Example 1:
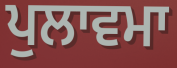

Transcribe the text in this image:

ਪੁਲਾਵਮਾ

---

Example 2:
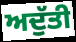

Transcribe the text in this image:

ਅਦੁੱਤੀ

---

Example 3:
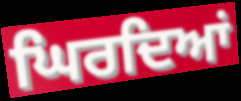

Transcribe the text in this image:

ਘਿਰਦਿਆਂ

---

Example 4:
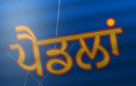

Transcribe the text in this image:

ਪੈਡਲਾਂ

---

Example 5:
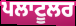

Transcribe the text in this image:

ਪਲਾਟੂਲਰ